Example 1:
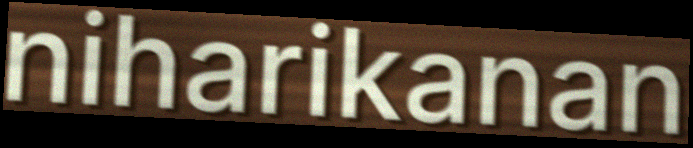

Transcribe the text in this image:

niharikanan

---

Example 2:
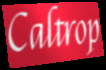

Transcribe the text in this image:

Caltrop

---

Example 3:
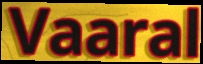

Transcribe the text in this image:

Vaaral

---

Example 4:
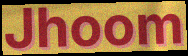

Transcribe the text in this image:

Jhoom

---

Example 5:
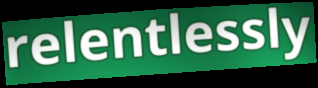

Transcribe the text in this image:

relentlessly